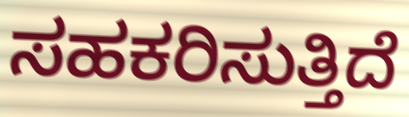
ಸಹಕರಿಸುತ್ತಿದೆ